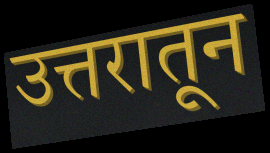
उत्तरातून